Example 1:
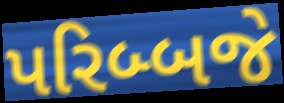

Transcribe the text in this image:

પરિબ્બજે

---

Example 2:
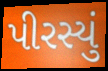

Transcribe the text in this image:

પીરસ્યું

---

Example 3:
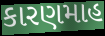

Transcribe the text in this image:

કારણમાહ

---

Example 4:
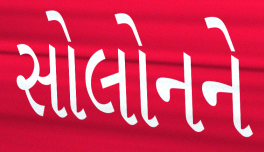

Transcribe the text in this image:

સોલોનને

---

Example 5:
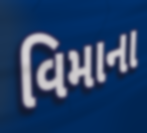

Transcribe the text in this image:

વિમાના